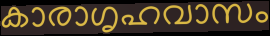
കാരാഗൃഹവാസം